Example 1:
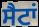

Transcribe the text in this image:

ਸੈਟਾਂ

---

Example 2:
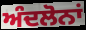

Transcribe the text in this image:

ਅੰਦਲੋਨਾਂ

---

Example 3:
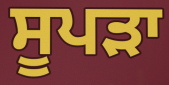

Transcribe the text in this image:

ਸੂਪੜਾ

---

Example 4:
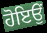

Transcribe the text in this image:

ਹੋਇਉਂ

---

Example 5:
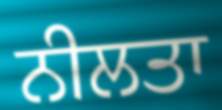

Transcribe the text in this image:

ਨੀਲਤਾ